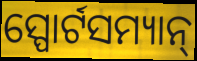
ସ୍ପୋର୍ଟସମ୍ୟାନ୍